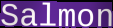
Salmon